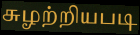
சுழற்றியபடி